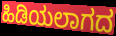
ಹಿಡಿಯಲಾಗದ